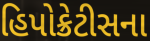
હિપોક્રેટીસના